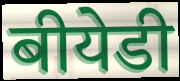
बीयेडी